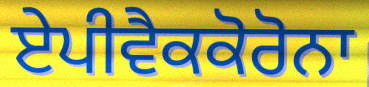
ਏਪੀਵੈਕਕੋਰੋਨਾ